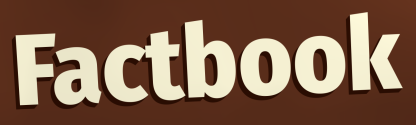
Factbook